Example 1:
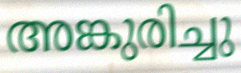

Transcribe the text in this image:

അങ്കുരിച്ചു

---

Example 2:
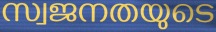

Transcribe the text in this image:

സ്വജനതയുടെ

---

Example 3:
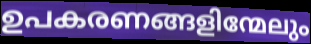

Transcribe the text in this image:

ഉപകരണങ്ങളിന്മേലും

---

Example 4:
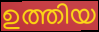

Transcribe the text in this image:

ഉത്തിയ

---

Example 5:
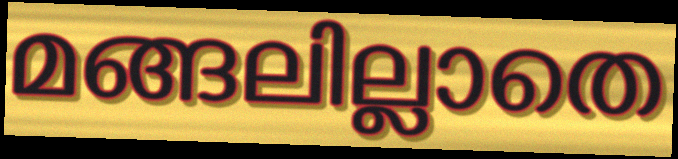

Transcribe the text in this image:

മങ്ങലില്ലാതെ